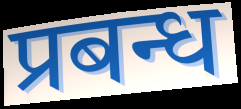
प्रबन्ध